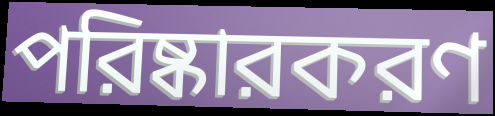
পরিষ্কারকরণ